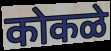
कोकळे